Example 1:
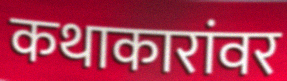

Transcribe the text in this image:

कथाकारांवर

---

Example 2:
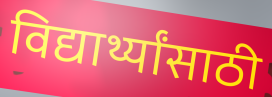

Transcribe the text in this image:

विद्यार्थ्यांसाठी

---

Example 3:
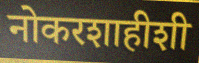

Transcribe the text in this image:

नोकरशाहीशी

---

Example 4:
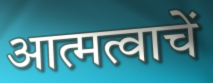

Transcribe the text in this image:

आत्मत्वाचें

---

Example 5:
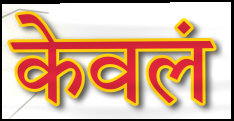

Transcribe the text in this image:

केवलं